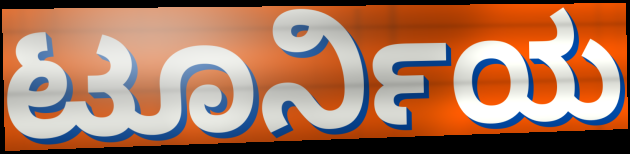
ಟೂರ್ನಿಯ